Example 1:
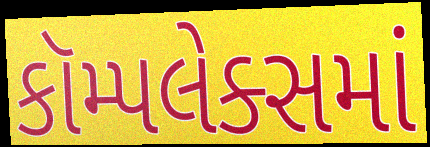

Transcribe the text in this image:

કૉમ્પલેક્સમાં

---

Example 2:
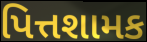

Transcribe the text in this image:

પિત્તશામક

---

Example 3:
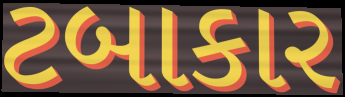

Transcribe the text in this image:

ટબાકાર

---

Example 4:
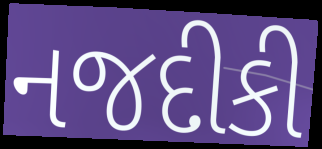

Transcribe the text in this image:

નજદીકી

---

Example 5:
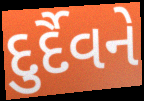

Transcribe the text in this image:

દુર્દૈવને